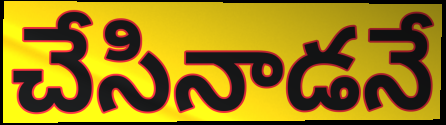
చేసినాడనే